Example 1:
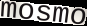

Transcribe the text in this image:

mosmo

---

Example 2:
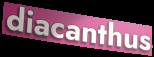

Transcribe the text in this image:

diacanthus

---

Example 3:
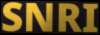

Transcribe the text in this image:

SNRI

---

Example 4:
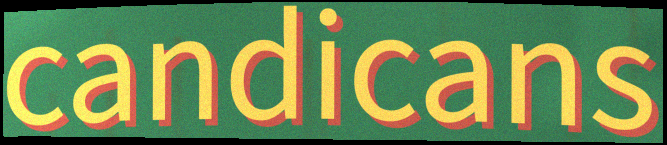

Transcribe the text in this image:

candicans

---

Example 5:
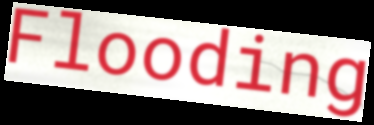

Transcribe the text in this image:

Flooding